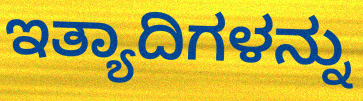
ಇತ್ಯಾದಿಗಳನ್ನು